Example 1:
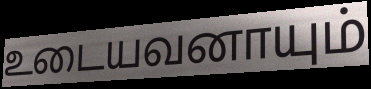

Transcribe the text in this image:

உடையவனாயும்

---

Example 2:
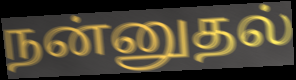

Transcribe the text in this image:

நன்னுதல்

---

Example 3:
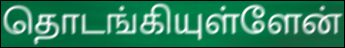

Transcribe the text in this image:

தொடங்கியுள்ளேன்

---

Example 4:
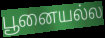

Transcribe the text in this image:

பூனையல்ல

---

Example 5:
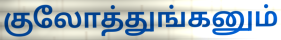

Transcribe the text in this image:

குலோத்துங்கனும்